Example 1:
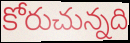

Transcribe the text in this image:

కోరుచున్నది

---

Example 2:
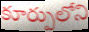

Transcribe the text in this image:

కూర్పులోని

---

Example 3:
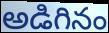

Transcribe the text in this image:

అడిగినం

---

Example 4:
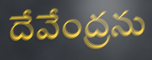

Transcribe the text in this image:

దేవేంద్రను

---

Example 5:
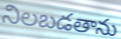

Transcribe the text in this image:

నిలబడతాను